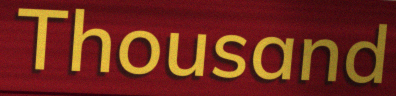
Thousand